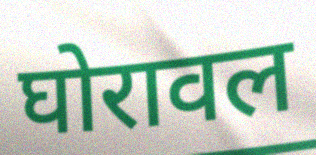
घोरावल